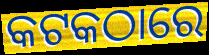
କଟକଠାରେ